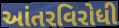
આંતરવિરોધી